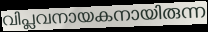
വിപ്ലവനായകനായിരുന്ന